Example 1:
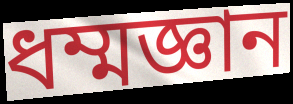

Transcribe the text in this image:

ধম্মজ্ঞান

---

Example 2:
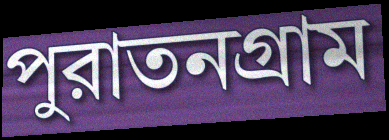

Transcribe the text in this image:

পুরাতনগ্রাম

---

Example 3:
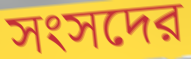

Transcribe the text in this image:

সংসদের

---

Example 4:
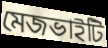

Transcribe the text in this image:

মেজভাইটি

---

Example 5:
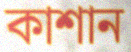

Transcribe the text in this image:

কাশান